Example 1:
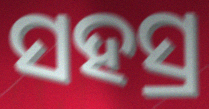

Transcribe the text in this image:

ସହସ୍ର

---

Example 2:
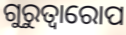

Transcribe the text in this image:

ଗୁରୁତ୍ୱାରୋପ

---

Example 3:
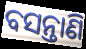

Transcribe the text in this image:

ବସନ୍ତାଣି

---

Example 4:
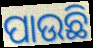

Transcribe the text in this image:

ପାଉଛି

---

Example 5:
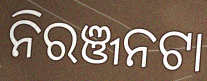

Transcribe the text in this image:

ନିରଞ୍ଜନଟା